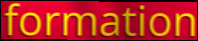
formation